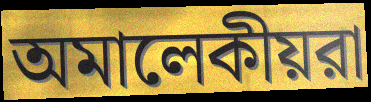
অমালেকীয়রা